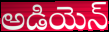
అడియెన్